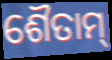
ଶୈତାମ୍